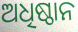
ଅଧିଷ୍ଠାନ